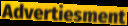
Advertiesment